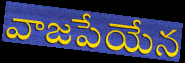
వాజపేయేన